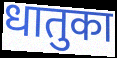
धातुका